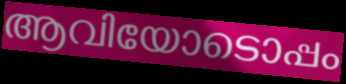
ആവിയോടൊപ്പം